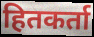
हितकर्ता